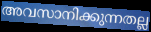
അവസാനിക്കുന്നതല്ല